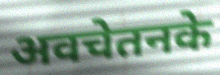
अवचेतनके